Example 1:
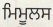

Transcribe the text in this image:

ਮਿਮੂਲਸ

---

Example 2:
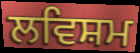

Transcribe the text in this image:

ਲਵਿਸ਼ਮ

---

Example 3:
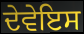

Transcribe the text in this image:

ਦੇਵੇਇਸ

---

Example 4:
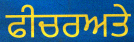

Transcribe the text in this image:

ਫੀਚਰਅਤੇ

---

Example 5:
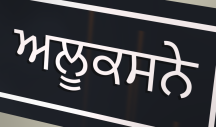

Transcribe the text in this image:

ਅਲੂਕਸਨੇ